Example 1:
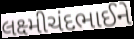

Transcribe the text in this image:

લક્ષ્મીચંદભાઈને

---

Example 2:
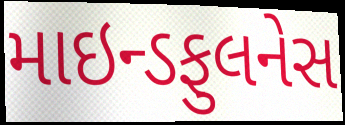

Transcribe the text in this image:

માઇન્ડફુલનેસ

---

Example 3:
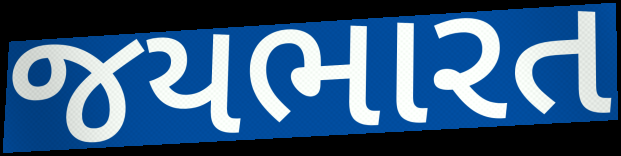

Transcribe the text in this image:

જયભારત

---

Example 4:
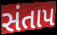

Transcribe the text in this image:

સંતાપ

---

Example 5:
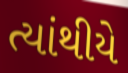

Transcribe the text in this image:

ત્યાંથીયે